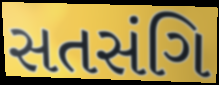
સતસંગિ